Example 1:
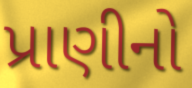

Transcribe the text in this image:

પ્રાણીનો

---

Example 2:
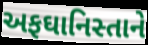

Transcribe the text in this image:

અફઘાનિસ્તાને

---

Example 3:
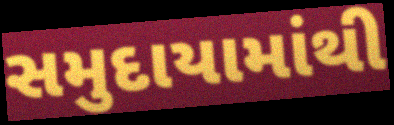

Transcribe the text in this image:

સમુદાયામાંથી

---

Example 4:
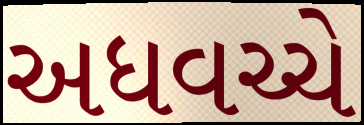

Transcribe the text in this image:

અધવચ્ચે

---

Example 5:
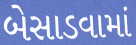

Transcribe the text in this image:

બેસાડવામાં